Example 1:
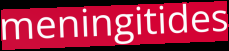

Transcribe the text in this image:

meningitides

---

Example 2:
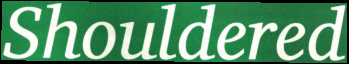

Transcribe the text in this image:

Shouldered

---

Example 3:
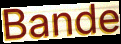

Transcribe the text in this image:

Bande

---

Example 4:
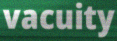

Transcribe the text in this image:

vacuity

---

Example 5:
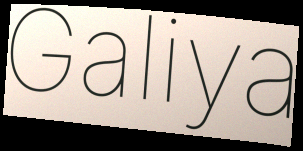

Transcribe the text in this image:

Galiya